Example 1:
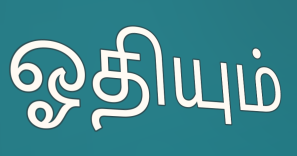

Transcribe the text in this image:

ஓதியும்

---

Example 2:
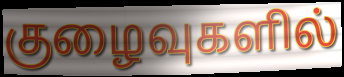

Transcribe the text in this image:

குழைவுகளில்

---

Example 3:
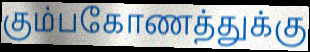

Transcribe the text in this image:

கும்பகோணத்துக்கு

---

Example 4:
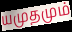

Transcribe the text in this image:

யமுதமும்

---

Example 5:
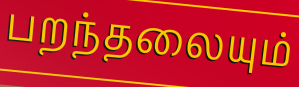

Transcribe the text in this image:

பறந்தலையும்